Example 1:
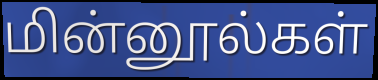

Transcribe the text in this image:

மின்னூல்கள்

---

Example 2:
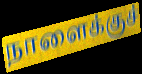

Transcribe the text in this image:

நாளைக்குச்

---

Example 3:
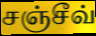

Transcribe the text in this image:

சஞ்சீவ்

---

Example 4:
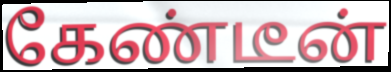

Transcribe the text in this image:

கேண்டீன்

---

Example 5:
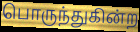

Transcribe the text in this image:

பொருந்துகின்ற